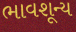
ભાવશૂન્ય